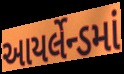
આયર્લેન્ડમાં